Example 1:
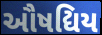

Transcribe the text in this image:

ઔષદ્યિય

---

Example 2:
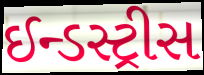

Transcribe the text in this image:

ઈન્ડસ્ટ્રીસ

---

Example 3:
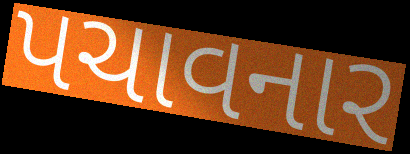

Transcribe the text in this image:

પચાવનાર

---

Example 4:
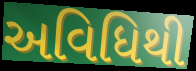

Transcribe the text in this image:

અવિધિથી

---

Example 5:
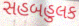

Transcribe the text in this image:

સહબહુલક